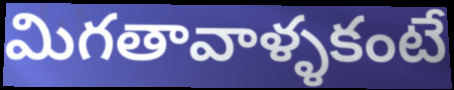
మిగతావాళ్ళకంటే